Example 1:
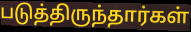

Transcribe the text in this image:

படுத்திருந்தார்கள்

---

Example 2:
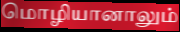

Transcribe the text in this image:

மொழியானாலும்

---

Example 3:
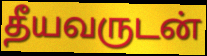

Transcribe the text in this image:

தீயவருடன்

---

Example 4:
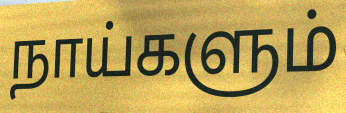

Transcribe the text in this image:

நாய்களும்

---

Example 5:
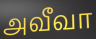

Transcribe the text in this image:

அவீவா